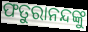
ଫତୁରାନନ୍ଦଙ୍କୁ